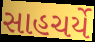
સાહચર્યે